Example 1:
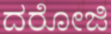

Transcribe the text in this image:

ದರೋಜಿ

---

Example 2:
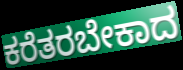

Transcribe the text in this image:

ಕರೆತರಬೇಕಾದ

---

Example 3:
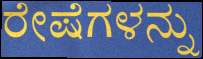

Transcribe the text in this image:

ರೇಷೆಗಳನ್ನು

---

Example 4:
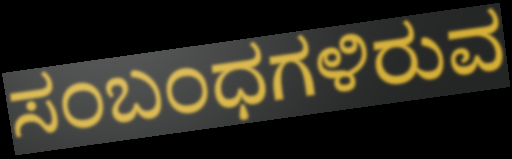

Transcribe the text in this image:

ಸಂಬಂಧಗಳಿರುವ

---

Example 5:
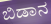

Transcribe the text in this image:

ಬಿಡಾನ